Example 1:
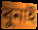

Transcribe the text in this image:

বুনাই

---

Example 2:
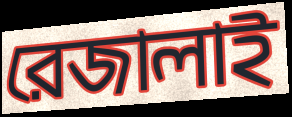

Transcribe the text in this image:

রেজালাই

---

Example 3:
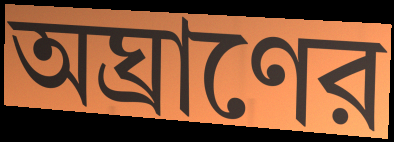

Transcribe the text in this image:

অঘ্রাণের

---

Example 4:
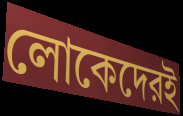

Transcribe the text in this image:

লোকেদেরই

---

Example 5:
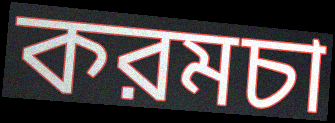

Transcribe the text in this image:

করমচা